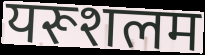
यरूशलम